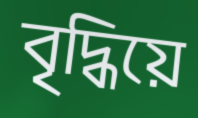
বৃদ্ধিয়ে